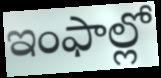
ఇంఫాల్లో